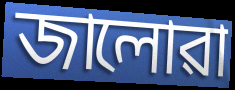
জালোৱা